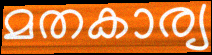
മതകാര്യ